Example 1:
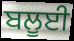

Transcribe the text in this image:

ਬਲੂਈ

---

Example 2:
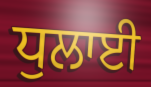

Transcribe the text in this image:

ਧੁਲਾਈ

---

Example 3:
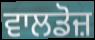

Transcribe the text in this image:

ਵਾਲਡੋਜ਼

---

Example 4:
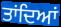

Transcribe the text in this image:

ਤਾਂਦਿਆਂ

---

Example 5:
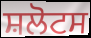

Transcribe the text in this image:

ਸ਼ਲੋਟਸ